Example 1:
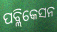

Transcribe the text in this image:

ପବ୍ଲିକେସନ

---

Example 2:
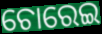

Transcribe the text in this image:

ଚୋରେଇ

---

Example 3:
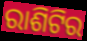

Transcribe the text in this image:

ରାଶିଟିର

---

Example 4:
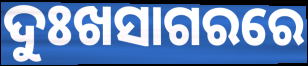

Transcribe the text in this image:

ଦୁଃଖସାଗରରେ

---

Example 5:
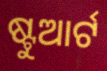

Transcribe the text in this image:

ଷ୍ଟୁଆର୍ଟ